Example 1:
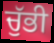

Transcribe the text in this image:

ਚੁੱਭੀ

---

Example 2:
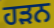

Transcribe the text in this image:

ਹੜਨ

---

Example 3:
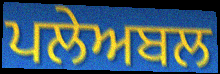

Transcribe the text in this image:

ਪਲੇਅਬਲ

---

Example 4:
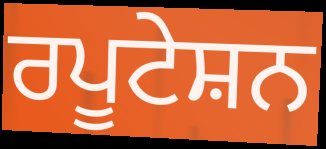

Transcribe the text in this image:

ਰਪੂਟੇਸ਼ਨ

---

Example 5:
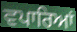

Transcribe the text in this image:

ਵਪਾਰਿਆਂ